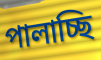
পালাচ্ছি